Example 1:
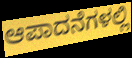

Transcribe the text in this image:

ಆಪಾದನೆಗಳಲ್ಲಿ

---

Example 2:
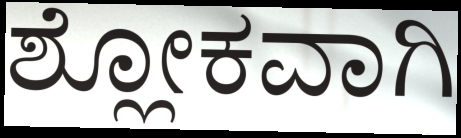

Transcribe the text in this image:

ಶ್ಲೋಕವಾಗಿ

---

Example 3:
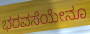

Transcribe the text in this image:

ಭರವಸೆಯೇನೂ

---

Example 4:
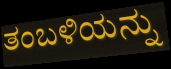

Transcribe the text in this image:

ತಂಬಳಿಯನ್ನು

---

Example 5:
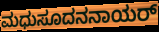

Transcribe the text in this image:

ಮಧುಸೂದನನಾಯರ್